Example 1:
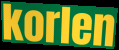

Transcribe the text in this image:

korlen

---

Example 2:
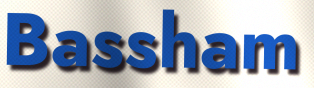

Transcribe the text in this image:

Bassham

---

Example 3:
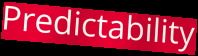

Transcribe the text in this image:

Predictability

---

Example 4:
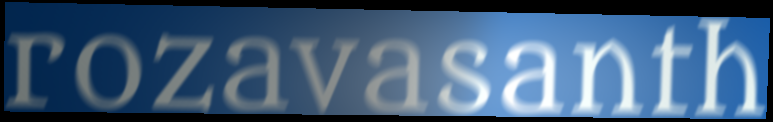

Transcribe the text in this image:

rozavasanth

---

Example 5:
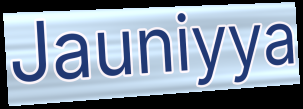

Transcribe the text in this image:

Jauniyya